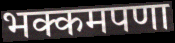
भक्कमपणा